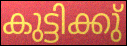
കുട്ടിക്കു്